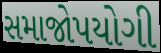
સમાજોપયોગી